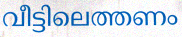
വീട്ടിലെത്തണം